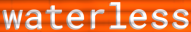
waterless